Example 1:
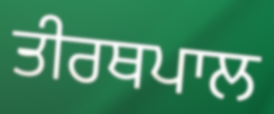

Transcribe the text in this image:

ਤੀਰਥਪਾਲ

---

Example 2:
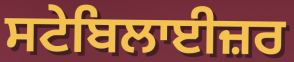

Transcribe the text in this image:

ਸਟੇਬਿਲਾਈਜ਼ਰ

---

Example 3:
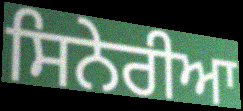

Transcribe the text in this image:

ਸਿਨੇਰੀਆ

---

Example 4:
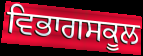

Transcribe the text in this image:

ਵਿਭਾਗਸਕੂਲ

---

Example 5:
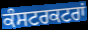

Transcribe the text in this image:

ਕੰਸਟਰਕਟਰਾਂ